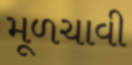
મૂળચાવી